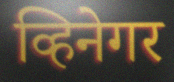
व्हिनेगर